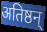
अतिष्ठन्